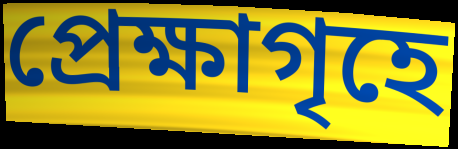
প্রেক্ষাগৃহে